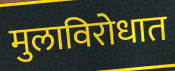
मुलाविरोधात